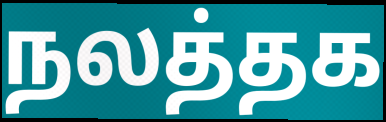
நலத்தக